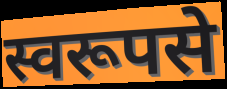
स्वरूपसे